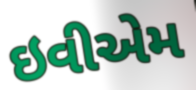
ઇવીએમ